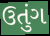
ઉતુંગ